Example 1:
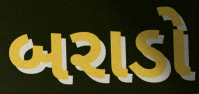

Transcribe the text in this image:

બરાડો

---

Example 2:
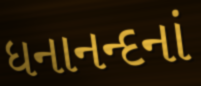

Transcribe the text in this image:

ધનાનન્દનાં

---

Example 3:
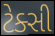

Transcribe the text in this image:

ટેક્સી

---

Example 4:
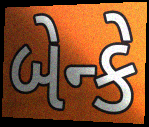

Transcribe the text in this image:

બેન્કે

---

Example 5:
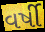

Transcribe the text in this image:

વર્ષી